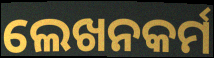
ଲେଖନକର୍ମ